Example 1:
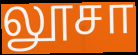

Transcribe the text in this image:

லூசா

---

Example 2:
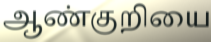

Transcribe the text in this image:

ஆண்குறியை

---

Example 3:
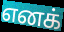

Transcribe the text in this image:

எனக்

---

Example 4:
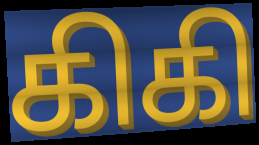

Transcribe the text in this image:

கிகி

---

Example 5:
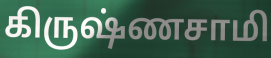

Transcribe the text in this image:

கிருஷ்ணசாமி